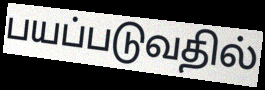
பயப்படுவதில்